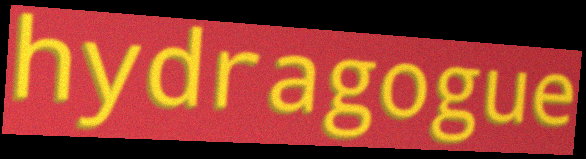
hydragogue